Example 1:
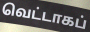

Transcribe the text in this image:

வெட்டாகப்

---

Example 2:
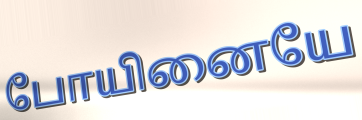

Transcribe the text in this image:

போயினையே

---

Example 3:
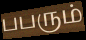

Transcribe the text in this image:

பபரும்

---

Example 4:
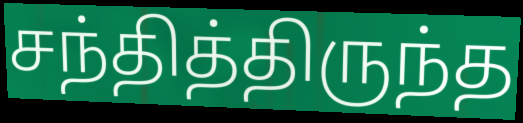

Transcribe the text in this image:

சந்தித்திருந்த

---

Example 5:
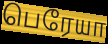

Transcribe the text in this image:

பெரேயா